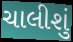
ચાલીશું